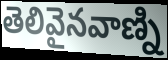
తెలివైనవాణ్ని